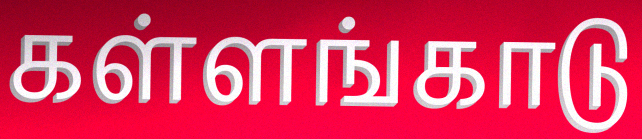
கள்ளங்காடு